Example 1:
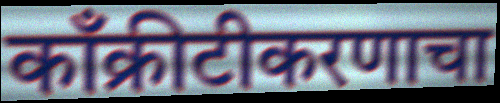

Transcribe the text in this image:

काँक्रीटीकरणाचा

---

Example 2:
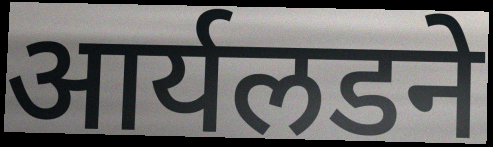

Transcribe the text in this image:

आर्यलडने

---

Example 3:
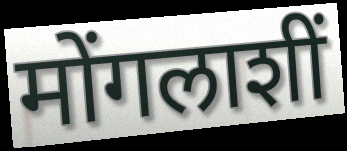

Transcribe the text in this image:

मोंगलाशीं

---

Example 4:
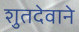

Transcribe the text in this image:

श्रुतदेवाने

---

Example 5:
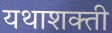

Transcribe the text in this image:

यथाशक्‍ती